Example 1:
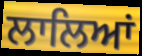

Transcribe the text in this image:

ਲਾਲਿਆਂ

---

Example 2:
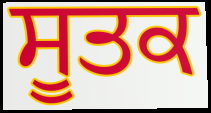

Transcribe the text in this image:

ਸੂਤਕ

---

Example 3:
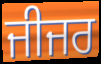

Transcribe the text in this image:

ਜੀਜਰ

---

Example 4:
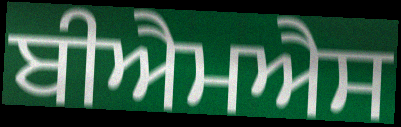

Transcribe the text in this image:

ਬੀਐਮਐਸ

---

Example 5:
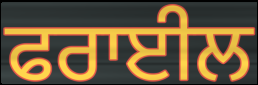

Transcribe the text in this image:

ਫਰਾਈਲ